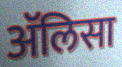
ॲलिसा